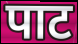
पाट